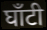
घाँटी